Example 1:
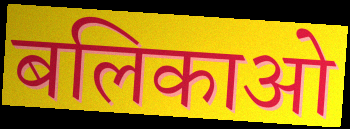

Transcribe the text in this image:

बलिकाओ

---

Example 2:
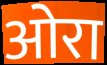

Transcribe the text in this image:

ओरा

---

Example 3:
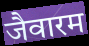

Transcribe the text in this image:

जैवारम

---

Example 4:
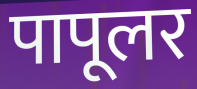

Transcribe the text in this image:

पापूलर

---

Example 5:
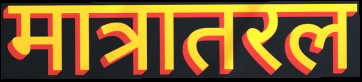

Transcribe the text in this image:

मात्रातरल